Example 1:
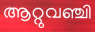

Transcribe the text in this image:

ആറ്റുവഞ്ചി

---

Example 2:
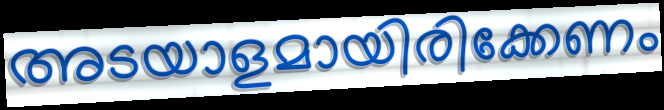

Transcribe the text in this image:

അടയാളമായിരിക്കേണം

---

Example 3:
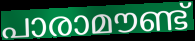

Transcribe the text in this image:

പാരാമൗണ്ട്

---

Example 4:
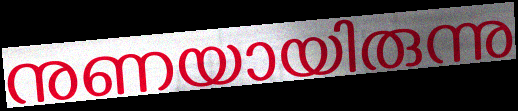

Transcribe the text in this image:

നുണയായിരുന്നു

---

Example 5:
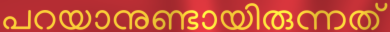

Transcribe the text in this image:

പറയാനുണ്ടായിരുന്നത്